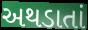
અથડાતાં